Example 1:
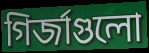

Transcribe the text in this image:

গির্জাগুলো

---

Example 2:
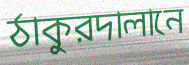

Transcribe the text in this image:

ঠাকুরদালানে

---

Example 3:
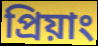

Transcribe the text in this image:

প্রিয়াং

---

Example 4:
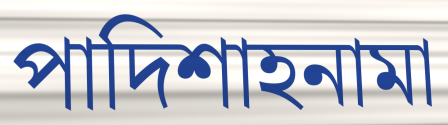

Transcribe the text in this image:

পাদিশাহনামা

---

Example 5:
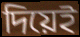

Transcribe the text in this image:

দিয়েই